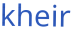
kheir